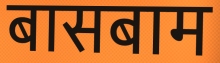
बासबाम